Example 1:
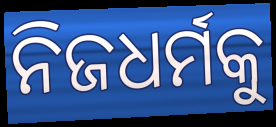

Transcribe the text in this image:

ନିଜଧର୍ମକୁ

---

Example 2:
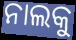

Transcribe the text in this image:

ନାଲକୁ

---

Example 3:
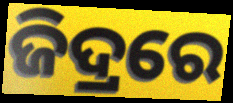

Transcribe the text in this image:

ଜିଦ୍ରରେ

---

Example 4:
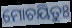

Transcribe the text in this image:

ମୋଚୟିତୁଃ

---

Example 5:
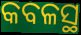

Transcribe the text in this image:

କବଳସ୍ଥ